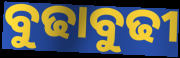
ବୁଢାବୁଢୀ